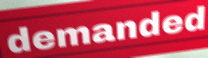
demanded